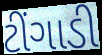
ટીંગાડી